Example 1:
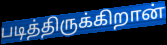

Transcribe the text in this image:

படித்திருக்கிறான்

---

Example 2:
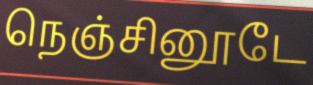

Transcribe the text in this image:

நெஞ்சினூடே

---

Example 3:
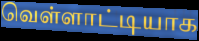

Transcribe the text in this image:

வெள்ளாட்டியாக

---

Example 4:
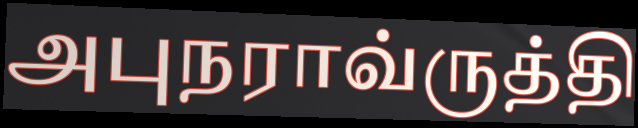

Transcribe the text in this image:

அபுநராவ்ருத்தி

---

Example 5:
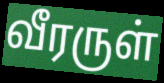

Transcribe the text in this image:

வீரருள்